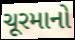
ચૂરમાનો